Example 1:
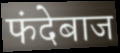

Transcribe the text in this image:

फंदेबाज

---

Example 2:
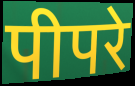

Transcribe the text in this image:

पीपरे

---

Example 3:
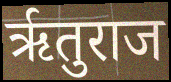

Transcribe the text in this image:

ऋृतुराज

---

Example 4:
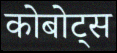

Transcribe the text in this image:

कोबोट्स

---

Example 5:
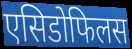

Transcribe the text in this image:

एसिडोफिलस